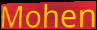
Mohen